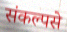
संकल्पसे